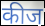
कीज